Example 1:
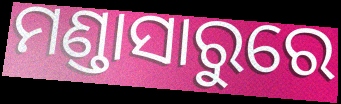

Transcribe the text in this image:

ମଣ୍ଡାସାରୁରେ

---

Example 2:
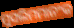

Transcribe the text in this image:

ମୁସଲିମମାନଂକ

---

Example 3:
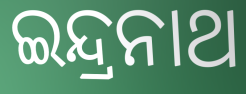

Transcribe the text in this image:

ଇନ୍ଦ୍ରନାଥ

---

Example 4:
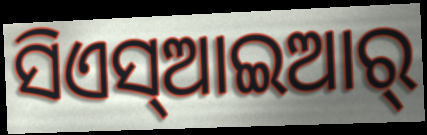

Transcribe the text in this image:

ସିଏସ୍ଆଇଆର୍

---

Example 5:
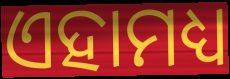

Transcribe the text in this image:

ଏହାମଧ୍ୟ